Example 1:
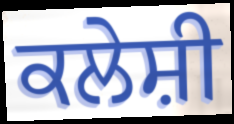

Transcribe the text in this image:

ਕਲੇਸ਼ੀ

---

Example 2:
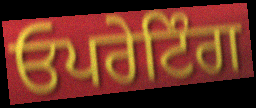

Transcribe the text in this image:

ਓਪਰੇਟਿੰਗ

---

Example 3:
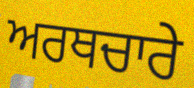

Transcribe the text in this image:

ਅਰਥਚਾਰੇ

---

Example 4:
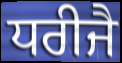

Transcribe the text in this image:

ਧਰੀਜੈ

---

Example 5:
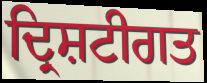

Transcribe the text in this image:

ਦ੍ਰਿਸ਼ਟੀਗਤ